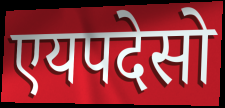
एयपदेसो